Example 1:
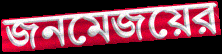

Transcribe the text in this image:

জনমেজয়ের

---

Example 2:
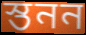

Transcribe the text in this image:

স্তনন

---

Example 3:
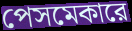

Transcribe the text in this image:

পেসমেকারে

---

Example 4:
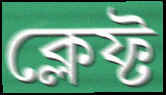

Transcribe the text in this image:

ক্লেফ্ট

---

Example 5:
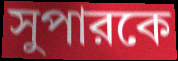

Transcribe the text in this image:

সুপারকে